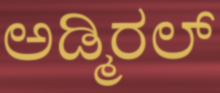
ಅಡ್ಮಿರಲ್